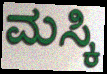
ಮಸ್ಕಿ